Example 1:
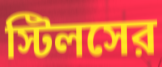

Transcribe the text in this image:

স্টিলসের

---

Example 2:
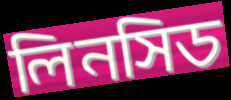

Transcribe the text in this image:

লিনসিড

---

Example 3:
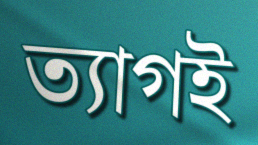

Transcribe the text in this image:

ত্যাগই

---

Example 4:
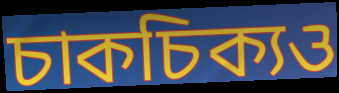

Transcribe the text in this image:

চাকচিক্যও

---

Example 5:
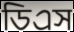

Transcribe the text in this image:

ডিএস